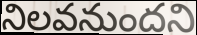
నిలవనుందని